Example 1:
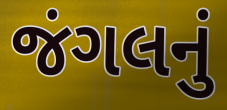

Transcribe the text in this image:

જંગલનું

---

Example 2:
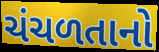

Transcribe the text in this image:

ચંચળતાનો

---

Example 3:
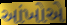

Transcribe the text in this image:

આંખોએ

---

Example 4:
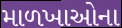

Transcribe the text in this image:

માળખાઓના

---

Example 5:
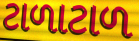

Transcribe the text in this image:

ટાળાટાળ